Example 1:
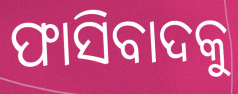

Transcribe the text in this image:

ଫାସିବାଦକୁ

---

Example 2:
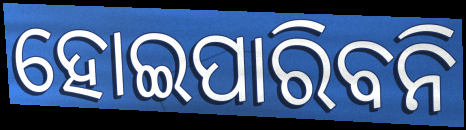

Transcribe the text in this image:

ହୋଇପାରିବନି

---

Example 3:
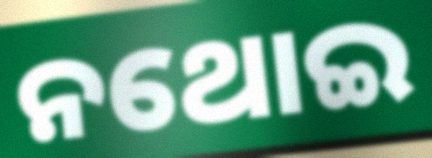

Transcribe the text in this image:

ନଥୋଇ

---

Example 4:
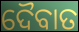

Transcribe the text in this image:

ଦୈବାତ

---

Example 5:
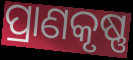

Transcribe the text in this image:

ପ୍ରାଣକୃଷ୍ଣ